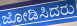
ಜೋಡಿಸಿದರು